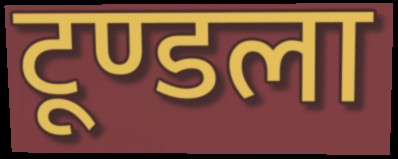
टूण्डला